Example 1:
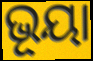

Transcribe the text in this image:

ଭୂୟା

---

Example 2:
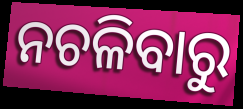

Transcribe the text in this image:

ନଚଳିବାରୁ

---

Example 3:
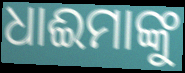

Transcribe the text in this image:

ଧାଈମାଙ୍କୁ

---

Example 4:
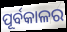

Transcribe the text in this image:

ପୂର୍ବକାଳର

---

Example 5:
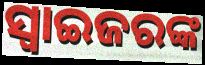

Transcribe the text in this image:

ସ୍ଵାଇଜରଙ୍କ